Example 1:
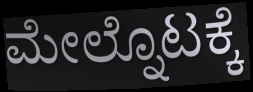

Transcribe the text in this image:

ಮೇಲ್ನೊಟಕ್ಕೆ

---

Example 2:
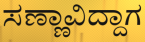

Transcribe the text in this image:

ಸಣ್ಣಾವಿದ್ದಾಗ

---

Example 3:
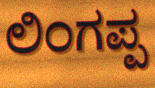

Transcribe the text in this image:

ಲಿಂಗಪ್ಪ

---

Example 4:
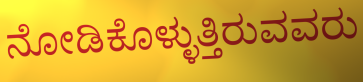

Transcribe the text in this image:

ನೋಡಿಕೊಳ್ಳುತ್ತಿರುವವರು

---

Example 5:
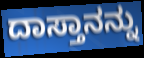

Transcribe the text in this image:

ದಾಸ್ತಾನನ್ನು